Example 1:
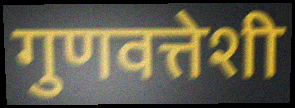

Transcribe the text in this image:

गुणवत्तेशी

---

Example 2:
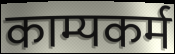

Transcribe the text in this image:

काम्यकर्म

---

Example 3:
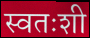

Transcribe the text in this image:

स्वतःशी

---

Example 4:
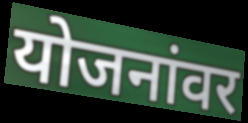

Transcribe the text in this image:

योजनांवर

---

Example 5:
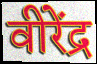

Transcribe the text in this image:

वीरेंद्र